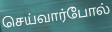
செய்வார்போல்